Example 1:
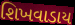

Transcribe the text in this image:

શિખવાડાય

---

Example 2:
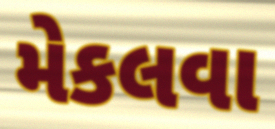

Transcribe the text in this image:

મેકલવા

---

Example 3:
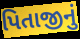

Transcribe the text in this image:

પિતાજીનું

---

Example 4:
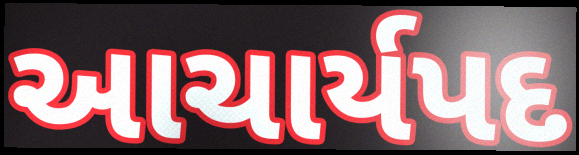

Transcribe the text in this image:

આચાર્યપદ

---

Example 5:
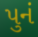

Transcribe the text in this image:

પુનં